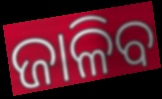
ଜାଳିବ